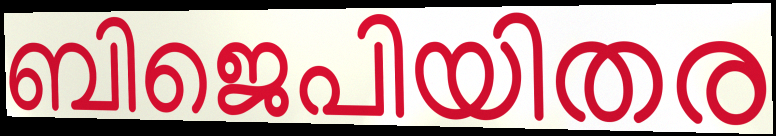
ബിജെപിയിതര